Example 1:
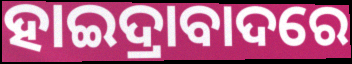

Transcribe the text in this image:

ହାଇଦ୍ରାବାଦରେ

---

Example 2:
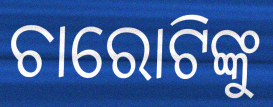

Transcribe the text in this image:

ଚାରୋଟିଙ୍କୁ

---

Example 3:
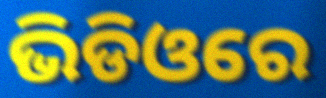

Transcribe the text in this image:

ଭିଡିଓରେ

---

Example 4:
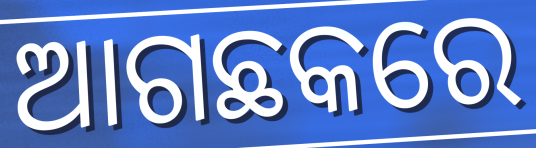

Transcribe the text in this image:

ଆଗଛକରେ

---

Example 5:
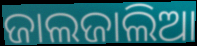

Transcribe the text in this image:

ଜାଲଜାଲିଆ